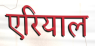
एरियाल